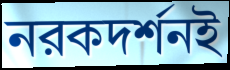
নরকদর্শনই